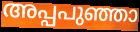
അപ്പപുഞ്ഞാ